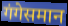
गंगेसमान